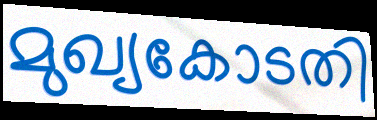
മുഖ്യകോടതി